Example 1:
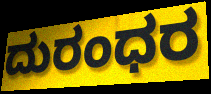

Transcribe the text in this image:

ದುರಂಧರ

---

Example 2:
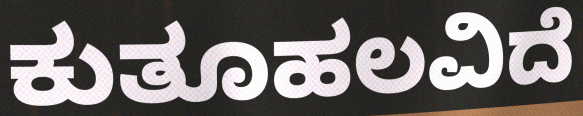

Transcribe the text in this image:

ಕುತೂಹಲವಿದೆ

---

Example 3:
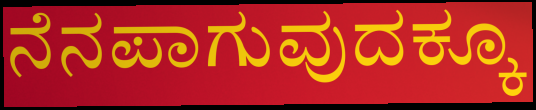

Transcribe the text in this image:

ನೆನಪಾಗುವುದಕ್ಕೂ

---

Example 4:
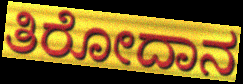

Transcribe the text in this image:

ತಿರೋದಾನ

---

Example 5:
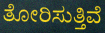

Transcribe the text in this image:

ತೋರಿಸುತ್ತಿವೆ